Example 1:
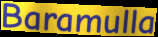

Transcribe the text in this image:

Baramulla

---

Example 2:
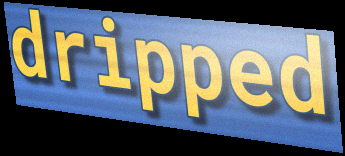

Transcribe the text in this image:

dripped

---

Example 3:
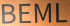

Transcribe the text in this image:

BEML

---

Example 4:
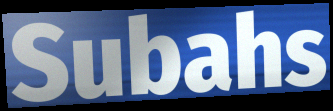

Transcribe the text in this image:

Subahs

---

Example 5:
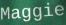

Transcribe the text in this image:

Maggie